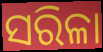
ସରିଳା